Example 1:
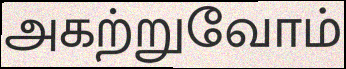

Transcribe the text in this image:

அகற்றுவோம்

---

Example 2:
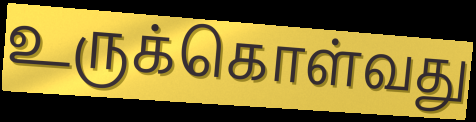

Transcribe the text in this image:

உருக்கொள்வது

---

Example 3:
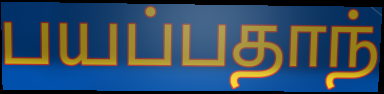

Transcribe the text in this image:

பயப்பதாந்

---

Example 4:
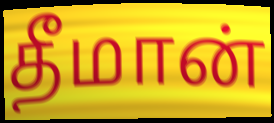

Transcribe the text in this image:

தீமான்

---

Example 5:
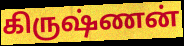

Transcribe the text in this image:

கிருஷ்ணன்